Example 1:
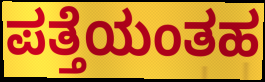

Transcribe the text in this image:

ಪತ್ತೆಯಂತಹ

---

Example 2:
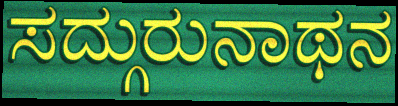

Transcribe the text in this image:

ಸದ್ಗುರುನಾಥನ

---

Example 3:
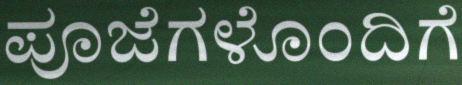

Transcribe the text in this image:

ಪೂಜೆಗಳೊಂದಿಗೆ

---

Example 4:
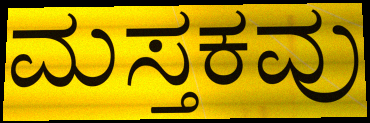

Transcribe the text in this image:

ಮಸ್ತಕವು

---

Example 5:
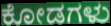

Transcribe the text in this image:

ಕೋಡಗಳು